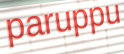
paruppu